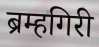
ब्रम्हगिरी